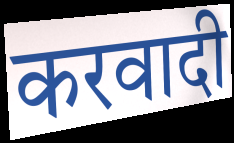
करवादी